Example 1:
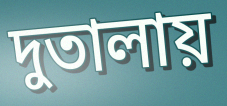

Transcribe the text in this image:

দুতালায়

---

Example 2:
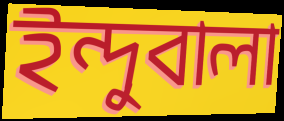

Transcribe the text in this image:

ইন্দুবালা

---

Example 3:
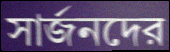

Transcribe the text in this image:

সার্জনদের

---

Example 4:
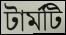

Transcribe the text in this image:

টার্মটি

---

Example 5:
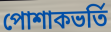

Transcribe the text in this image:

পোশাকভর্তি